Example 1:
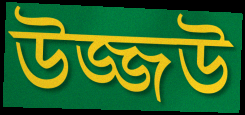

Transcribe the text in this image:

উজ্জউ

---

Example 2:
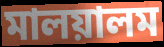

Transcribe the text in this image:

মালয়ালম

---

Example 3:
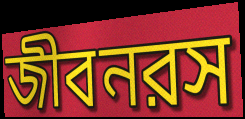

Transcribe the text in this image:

জীবনরস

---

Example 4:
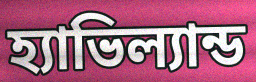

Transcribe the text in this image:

হ্যাভিল্যান্ড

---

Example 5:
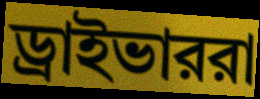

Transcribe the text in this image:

ড্রাইভাররা